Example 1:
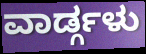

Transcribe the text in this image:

ವಾರ್ಡ್ಗಳು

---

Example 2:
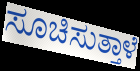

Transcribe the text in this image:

ಸೂಚಿಸುತ್ತಾಳೆ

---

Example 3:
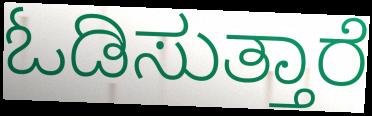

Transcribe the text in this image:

ಓಡಿಸುತ್ತಾರೆ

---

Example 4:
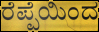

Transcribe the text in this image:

ರೆಪ್ಪೆಯಿಂದ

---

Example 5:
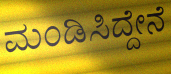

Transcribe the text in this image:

ಮಂಡಿಸಿದ್ದೇನೆ